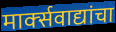
मार्क्‍सवाद्यांचा